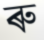
ৰু